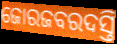
ଜୋରଜବରଦସ୍ତି